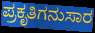
ಪ್ರಕೃತಿಗನುಸಾರ